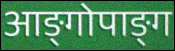
आङ्गोपाङ्ग